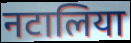
नटालिया